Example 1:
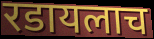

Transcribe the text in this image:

रडायलाच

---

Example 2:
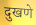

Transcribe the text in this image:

दुखणे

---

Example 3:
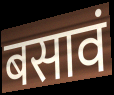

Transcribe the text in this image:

बसावं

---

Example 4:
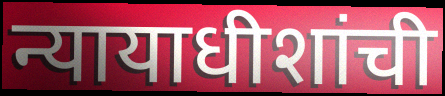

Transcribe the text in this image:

न्यायाधीशांची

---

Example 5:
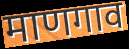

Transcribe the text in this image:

माणगाव